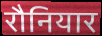
रौनियार